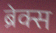
ब्रेक्स